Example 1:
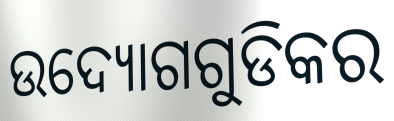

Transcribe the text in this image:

ଉଦ୍ୟୋଗଗୁଡିକର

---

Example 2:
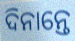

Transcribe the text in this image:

ଦିନାନ୍ତେ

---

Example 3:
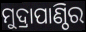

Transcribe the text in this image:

ମୁଦ୍ରାପାଣ୍ଠିର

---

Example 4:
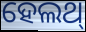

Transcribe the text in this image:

ହେଲଥ୍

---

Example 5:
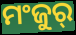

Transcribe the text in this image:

ମଂଜୁର୍